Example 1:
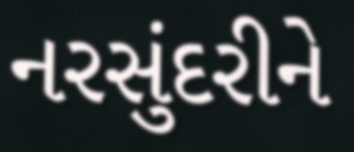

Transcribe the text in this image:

નરસુંદરીને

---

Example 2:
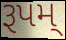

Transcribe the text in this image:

રૂપમ્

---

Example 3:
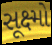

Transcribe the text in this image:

સૂક્ષ્મો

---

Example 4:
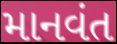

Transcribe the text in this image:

માનવંત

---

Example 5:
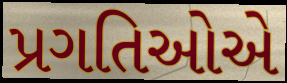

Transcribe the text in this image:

પ્રગતિઓએ